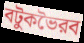
বটুকভৈরব